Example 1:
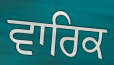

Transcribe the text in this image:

ਵਾਰਿਕ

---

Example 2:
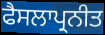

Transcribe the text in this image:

ਫੈਸਲਾਪ੍ਰਨੀਤ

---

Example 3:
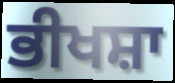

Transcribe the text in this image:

ਭੀਖਸ਼ਾ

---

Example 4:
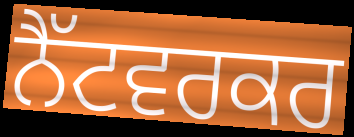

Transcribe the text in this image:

ਨੈੱਟਵਰਕਰ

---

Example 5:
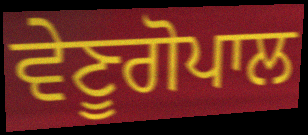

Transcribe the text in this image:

ਵੇਣੂਗੋਪਾਲ